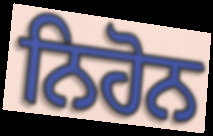
ਨਿਹੋਨ